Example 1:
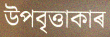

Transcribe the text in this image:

উপবৃত্তাকাৰ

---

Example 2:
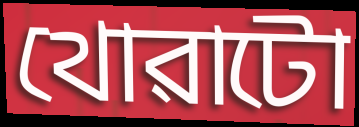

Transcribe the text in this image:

থোৱাটো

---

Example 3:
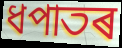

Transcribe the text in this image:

ধপাতৰ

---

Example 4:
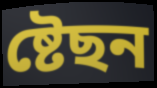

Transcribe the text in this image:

ষ্টেছন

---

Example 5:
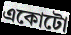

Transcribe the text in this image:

একোটো